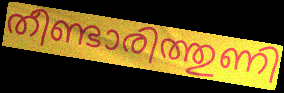
തീണ്ടാരിത്തുണി